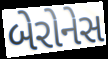
બેરોનેસ